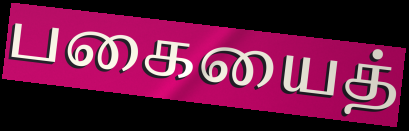
பகையைத்